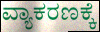
ವ್ಯಾಕರಣಕ್ಕೆ